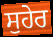
ਸੁਹੇਰ